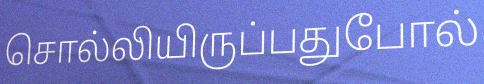
சொல்லியிருப்பதுபோல்